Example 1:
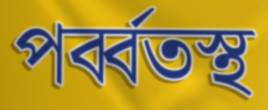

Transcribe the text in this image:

পর্ব্বতস্থ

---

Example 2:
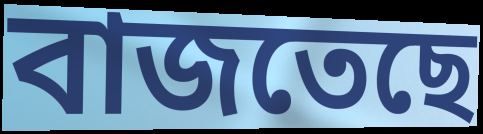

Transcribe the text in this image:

বাজতেছে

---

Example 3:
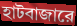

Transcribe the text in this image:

হাটবাজারে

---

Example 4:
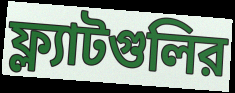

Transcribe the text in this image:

ফ্ল্যাটগুলির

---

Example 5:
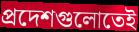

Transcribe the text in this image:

প্রদেশগুলোতেই